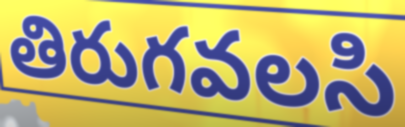
తిరుగవలసి